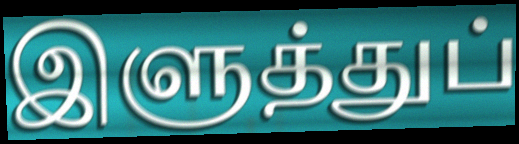
இளுத்துப்